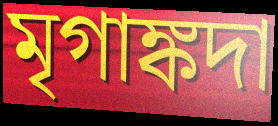
মৃগাঙ্কদা